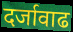
दर्जावाढ